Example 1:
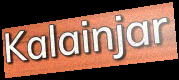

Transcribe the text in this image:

Kalainjar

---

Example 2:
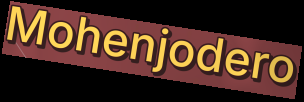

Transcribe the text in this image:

Mohenjodero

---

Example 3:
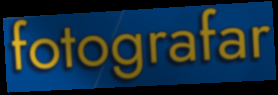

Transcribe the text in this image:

fotografar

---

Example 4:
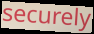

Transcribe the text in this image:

securely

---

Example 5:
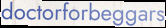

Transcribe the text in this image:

doctorforbeggars